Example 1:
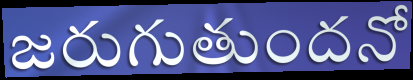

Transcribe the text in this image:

జరుగుతుందనో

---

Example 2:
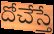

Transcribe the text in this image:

దోచేస్తే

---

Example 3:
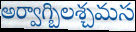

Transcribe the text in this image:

అర్వాగ్బిలశ్చమస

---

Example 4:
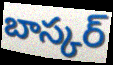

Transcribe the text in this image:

బాస్కర్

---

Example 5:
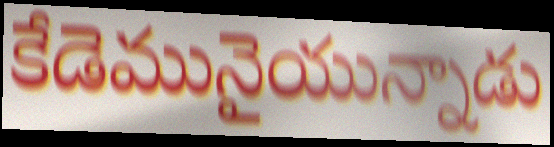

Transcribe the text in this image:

కేడెమునైయున్నాడు